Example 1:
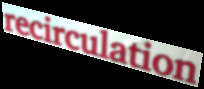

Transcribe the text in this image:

recirculation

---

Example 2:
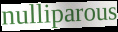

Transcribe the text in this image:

nulliparous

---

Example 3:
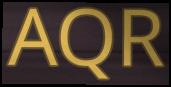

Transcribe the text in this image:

AQR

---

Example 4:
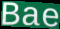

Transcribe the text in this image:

Bae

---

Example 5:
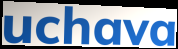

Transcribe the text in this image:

uchava